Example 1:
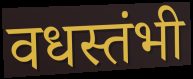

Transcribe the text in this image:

वधस्तंभी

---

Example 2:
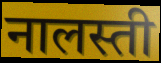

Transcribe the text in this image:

नालस्ती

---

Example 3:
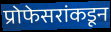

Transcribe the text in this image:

प्रोफेसरांकडून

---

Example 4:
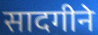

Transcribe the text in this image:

सादगीने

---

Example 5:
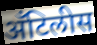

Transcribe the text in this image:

अँटिलीस